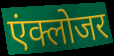
एंक्लोजर